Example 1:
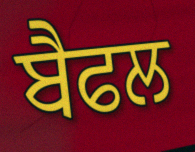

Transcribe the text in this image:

ਬੈਫਲ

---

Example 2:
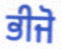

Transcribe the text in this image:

ਭੀਜੋ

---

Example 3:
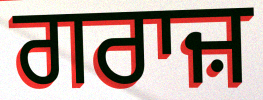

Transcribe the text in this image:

ਗਰਾਜ਼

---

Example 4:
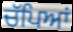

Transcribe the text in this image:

ਚੱਪਿਆਂ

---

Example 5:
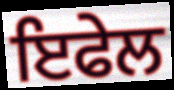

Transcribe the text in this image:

ਇਫੇਲ